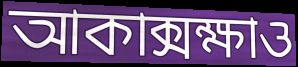
আকাক্সক্ষাও